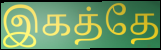
இகத்தே